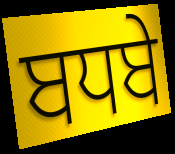
ਬਧਬੇ